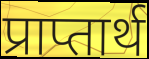
प्राप्तार्थ